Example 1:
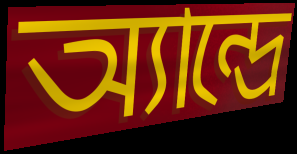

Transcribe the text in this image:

অ্যান্দ্রে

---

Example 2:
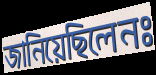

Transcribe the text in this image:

জানিয়েছিলেনঃ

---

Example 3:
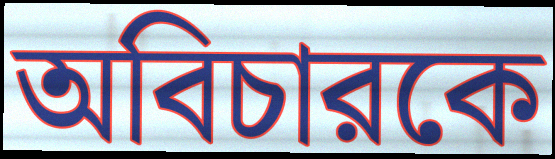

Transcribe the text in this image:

অবিচারকে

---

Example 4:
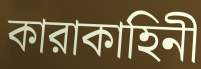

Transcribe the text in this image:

কারাকাহিনী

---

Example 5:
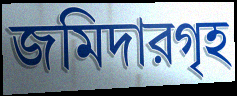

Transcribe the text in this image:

জমিদারগৃহ